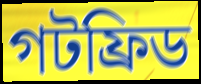
গটফ্রিড